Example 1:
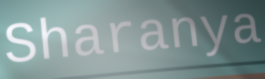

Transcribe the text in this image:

Sharanya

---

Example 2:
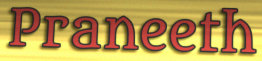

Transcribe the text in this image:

Praneeth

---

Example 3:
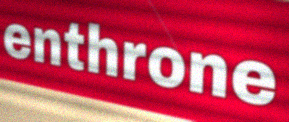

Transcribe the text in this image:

enthrone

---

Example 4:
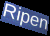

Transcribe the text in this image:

Ripen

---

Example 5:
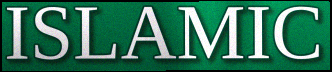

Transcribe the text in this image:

ISLAMIC